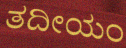
ತದೀಯಂ